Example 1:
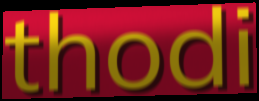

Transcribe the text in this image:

thodi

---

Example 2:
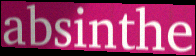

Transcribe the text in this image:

absinthe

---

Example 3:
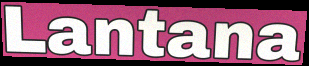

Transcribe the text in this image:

Lantana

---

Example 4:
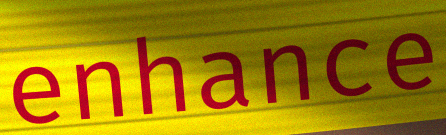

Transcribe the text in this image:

enhance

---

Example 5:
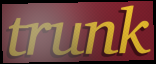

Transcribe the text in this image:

trunk